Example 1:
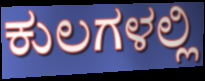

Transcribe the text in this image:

ಕುಲಗಳಲ್ಲಿ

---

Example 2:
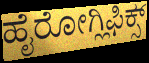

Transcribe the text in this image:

ಹೈರೋಗ್ಲಿಫಿಕ್ಸ್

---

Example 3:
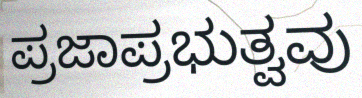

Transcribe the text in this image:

ಪ್ರಜಾಪ್ರಭುತ್ವವು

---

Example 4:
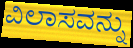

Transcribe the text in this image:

ವಿಲಾಸವನ್ನು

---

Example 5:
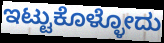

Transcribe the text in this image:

ಇಟ್ಟುಕೊಳ್ಳೋದು